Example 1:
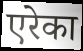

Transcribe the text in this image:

एरेका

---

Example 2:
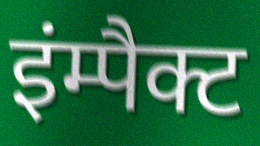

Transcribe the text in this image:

इंम्पैक्ट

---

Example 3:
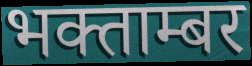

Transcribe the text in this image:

भक्ताम्बर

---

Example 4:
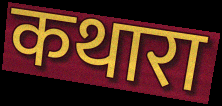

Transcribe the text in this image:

कथारा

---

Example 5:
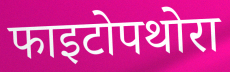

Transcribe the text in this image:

फाइटोपथोरा